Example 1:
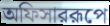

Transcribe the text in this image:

অফিসাররূপে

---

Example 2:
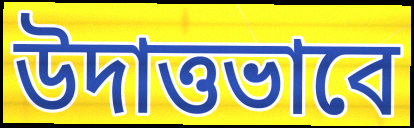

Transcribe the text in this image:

উদাত্তভাবে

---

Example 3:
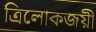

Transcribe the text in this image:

ত্রিলোকজয়ী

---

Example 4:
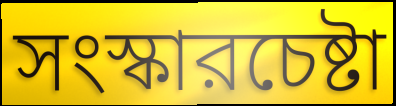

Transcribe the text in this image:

সংস্কারচেষ্টা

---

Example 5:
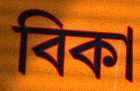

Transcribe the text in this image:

বিকা